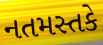
નતમસ્તકે